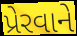
પ્રેરવાને